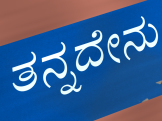
ತನ್ನದೇನು